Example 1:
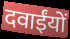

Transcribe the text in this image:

दवाईंयों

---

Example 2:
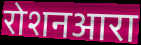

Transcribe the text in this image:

रोशनआरा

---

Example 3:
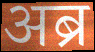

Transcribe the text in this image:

अब्र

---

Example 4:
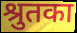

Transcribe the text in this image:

श्रुतका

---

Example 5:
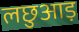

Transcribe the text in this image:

लछुआड़